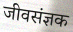
जीवसंज्ञक